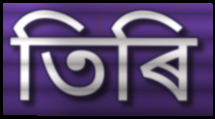
তিৰি